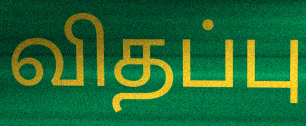
விதப்பு